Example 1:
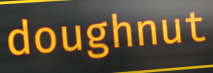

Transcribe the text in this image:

doughnut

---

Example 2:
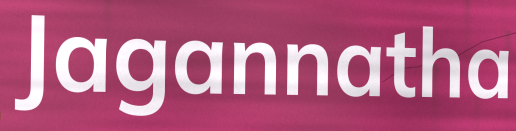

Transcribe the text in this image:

Jagannatha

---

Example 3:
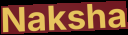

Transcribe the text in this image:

Naksha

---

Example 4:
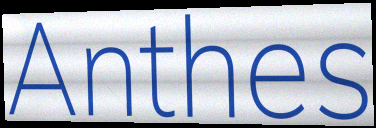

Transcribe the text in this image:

Anthes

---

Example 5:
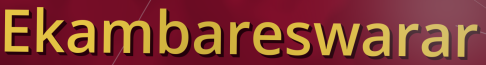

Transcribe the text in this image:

Ekambareswarar